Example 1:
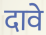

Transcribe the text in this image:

दावे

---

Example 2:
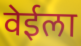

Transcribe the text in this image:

वेईला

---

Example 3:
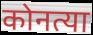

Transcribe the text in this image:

कोनत्या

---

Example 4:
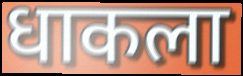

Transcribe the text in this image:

धाकला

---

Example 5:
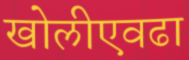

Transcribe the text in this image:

खोलीएवढा